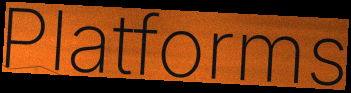
Platforms